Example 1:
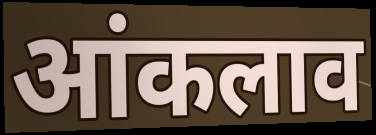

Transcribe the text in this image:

आंकलाव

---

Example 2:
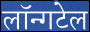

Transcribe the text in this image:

लॉन्गटेल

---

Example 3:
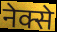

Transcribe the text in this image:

नेक्से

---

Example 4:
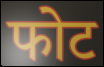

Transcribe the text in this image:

फोट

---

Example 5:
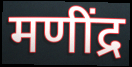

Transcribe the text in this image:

मणींद्र